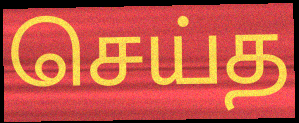
செய்த